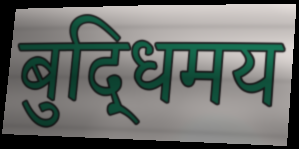
बुद्धिमय